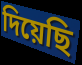
দিয়েছি